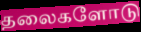
தலைகளோடு